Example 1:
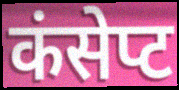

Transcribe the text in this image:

कंसेप्ट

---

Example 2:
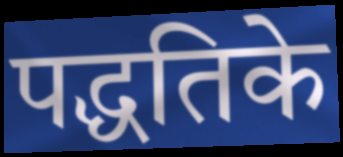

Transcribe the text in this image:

पद्धतिके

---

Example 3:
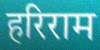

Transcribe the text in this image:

हरिराम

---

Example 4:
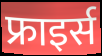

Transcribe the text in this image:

फ्राइर्स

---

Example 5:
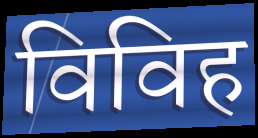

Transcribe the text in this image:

विविह